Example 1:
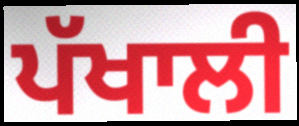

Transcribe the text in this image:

ਪੱਖਾਲੀ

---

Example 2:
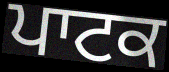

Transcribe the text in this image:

ਪਾਟਕ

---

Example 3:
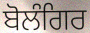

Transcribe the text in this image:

ਬੋਲੰਗਿਰ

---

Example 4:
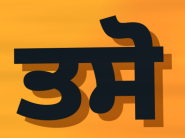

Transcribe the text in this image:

ਤਸੋ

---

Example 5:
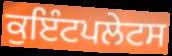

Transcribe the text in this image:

ਕੁਇੰਟਪਲੇਟਸ